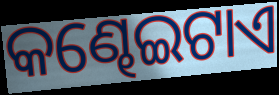
କଣ୍ଢେଇଟାଏ